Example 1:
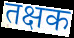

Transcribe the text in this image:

तक्षक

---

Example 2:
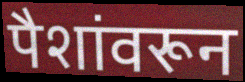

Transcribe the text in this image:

पैशांवरून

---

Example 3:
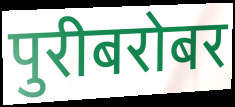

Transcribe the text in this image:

पुरीबरोबर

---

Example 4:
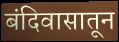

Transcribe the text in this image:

बंदिवासातून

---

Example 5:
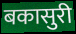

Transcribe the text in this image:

बकासुरी